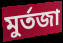
মুর্তজা